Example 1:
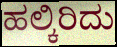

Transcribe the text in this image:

ಹಲ್ಕಿರಿದು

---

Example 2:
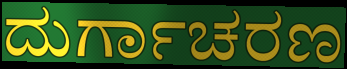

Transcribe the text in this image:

ದುರ್ಗಾಚರಣ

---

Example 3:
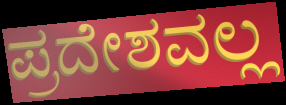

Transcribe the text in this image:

ಪ್ರದೇಶವಲ್ಲ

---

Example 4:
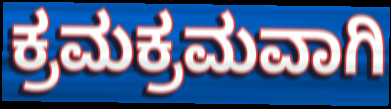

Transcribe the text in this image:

ಕ್ರಮಕ್ರಮವಾಗಿ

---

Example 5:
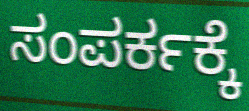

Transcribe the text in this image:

ಸಂಪರ್ಕಕ್ಕೆ